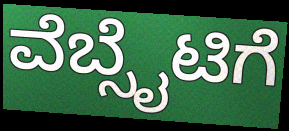
ವೆಬ್ಸೈಟಿಗೆ